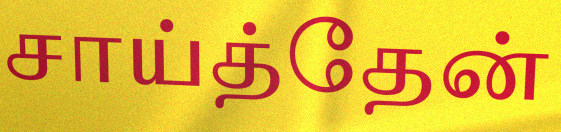
சாய்த்தேன்